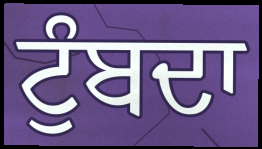
ਟੁੰਬਦਾ